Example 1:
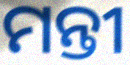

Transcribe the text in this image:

ମନ୍ତୀ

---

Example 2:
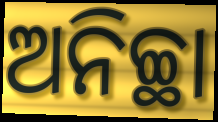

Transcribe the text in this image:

ଅନିଚ୍ଛା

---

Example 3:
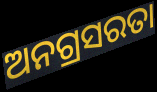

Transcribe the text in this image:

ଅନଗ୍ରସରତା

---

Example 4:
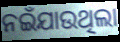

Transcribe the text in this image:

ନଇଁଯାଉଥିଲା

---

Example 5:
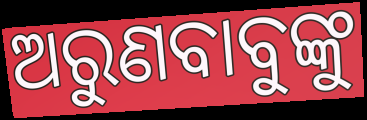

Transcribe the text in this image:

ଅରୁଣବାବୁଙ୍କୁ